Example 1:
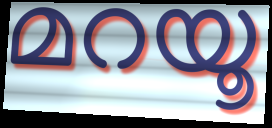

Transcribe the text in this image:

മറയൂ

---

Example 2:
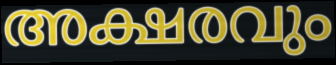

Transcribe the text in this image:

അക്ഷരവും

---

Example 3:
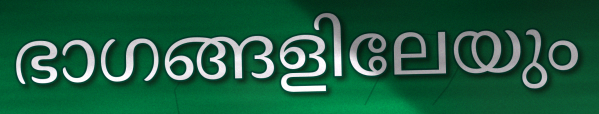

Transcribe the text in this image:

ഭാഗങ്ങളിലേയും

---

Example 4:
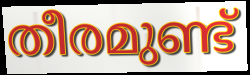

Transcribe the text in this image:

തീരമുണ്ട്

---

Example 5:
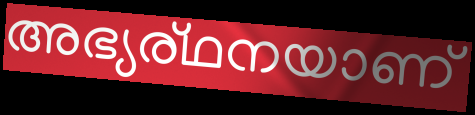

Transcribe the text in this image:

അഭ്യര്ഥനയാണ്